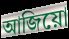
আজিয়ো